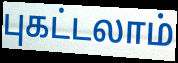
புகட்டலாம்